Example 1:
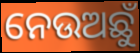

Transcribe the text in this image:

ନେଉଅଛୁଁ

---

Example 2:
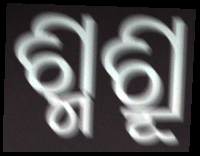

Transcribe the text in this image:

ଶ୍ମଶ୍ରୂ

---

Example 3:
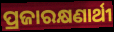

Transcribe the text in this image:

ପ୍ରଜାରକ୍ଷଣାର୍ଥୀ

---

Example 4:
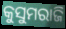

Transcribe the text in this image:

କୁସୁମରାଜି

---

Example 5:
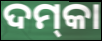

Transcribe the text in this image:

ଦମ୍‌କା